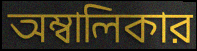
অম্বালিকার